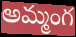
అమ్మంగ